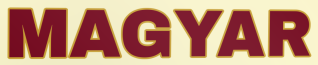
MAGYAR